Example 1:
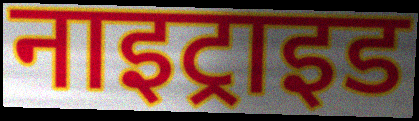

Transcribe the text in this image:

नाइट्राइड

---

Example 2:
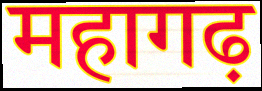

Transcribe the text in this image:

महागढ़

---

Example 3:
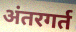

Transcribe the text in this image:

अंतरगर्त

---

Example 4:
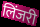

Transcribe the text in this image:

लिंजरी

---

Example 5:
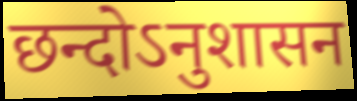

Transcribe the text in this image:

छन्दोऽनुशासन